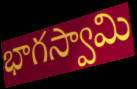
భాగస్వామి